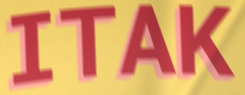
ITAK